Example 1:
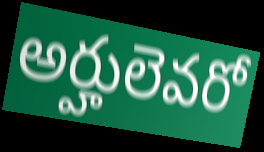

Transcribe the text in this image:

అర్హులెవరో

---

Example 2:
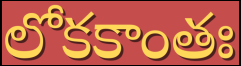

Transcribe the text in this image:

లోకకాంతః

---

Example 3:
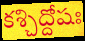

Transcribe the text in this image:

కశ్చిద్దోషః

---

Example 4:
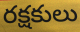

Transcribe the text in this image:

రక్షకులు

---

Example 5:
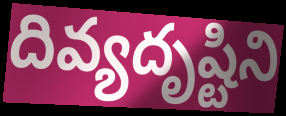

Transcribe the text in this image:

దివ్యదృష్టిని